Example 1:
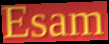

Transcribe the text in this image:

Esam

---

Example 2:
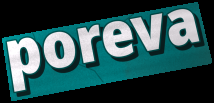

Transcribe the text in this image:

poreva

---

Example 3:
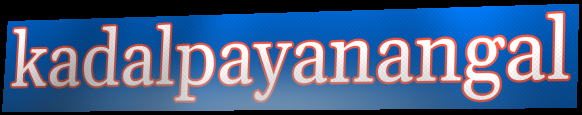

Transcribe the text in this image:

kadalpayanangal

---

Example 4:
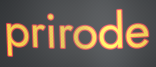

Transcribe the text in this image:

prirode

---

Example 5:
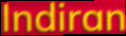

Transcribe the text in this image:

Indiran